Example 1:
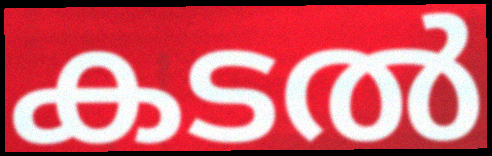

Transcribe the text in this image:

കടൽ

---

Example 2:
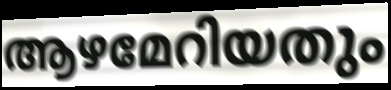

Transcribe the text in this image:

ആഴമേറിയതും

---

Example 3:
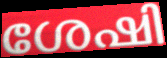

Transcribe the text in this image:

ശേഷി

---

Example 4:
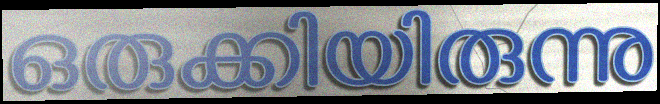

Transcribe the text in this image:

ഒരുക്കിയിരുന്നു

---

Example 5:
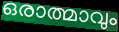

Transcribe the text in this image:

ഒരാത്മാവും